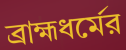
ব্রাহ্মধর্মের